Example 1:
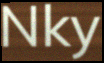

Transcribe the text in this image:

Nky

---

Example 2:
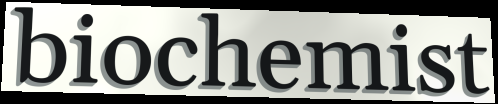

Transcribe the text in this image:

biochemist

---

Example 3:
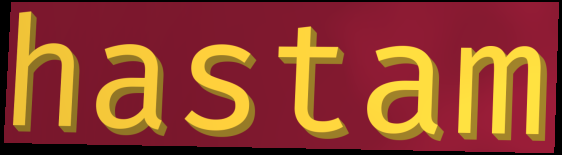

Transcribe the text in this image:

hastam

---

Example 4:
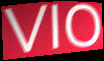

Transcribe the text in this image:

VIO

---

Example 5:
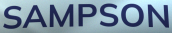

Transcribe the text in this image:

SAMPSON